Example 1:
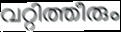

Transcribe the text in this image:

വറ്റിത്തീരും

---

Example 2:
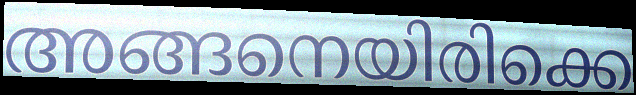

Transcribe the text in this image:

അങ്ങനെയിരിക്കെ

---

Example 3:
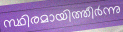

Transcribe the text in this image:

സ്ഥിരമായിത്തീർന്നു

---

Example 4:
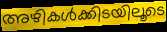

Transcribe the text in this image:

അഴികൾക്കിടയിലൂടെ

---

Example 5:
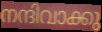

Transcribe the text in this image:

നന്ദിവാക്കു